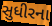
સુધીરના